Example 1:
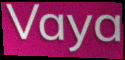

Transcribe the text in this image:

Vaya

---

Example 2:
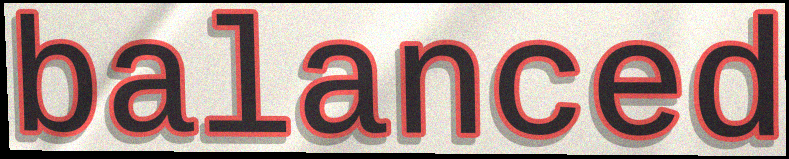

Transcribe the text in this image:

balanced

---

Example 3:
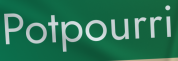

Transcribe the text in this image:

Potpourri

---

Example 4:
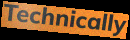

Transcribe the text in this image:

Technically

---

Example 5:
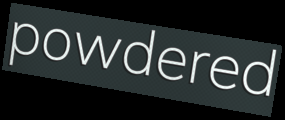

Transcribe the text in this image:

powdered